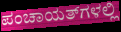
ಪಂಚಾಯತ್‌ಗಳಲ್ಲಿ